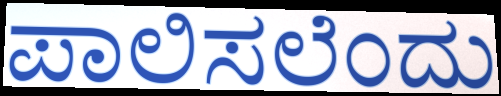
ಪಾಲಿಸಲೆಂದು